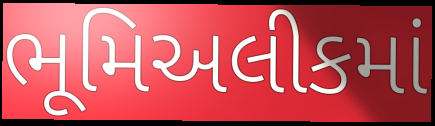
ભૂમિઅલીકમાં